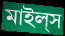
মাইল্‌স